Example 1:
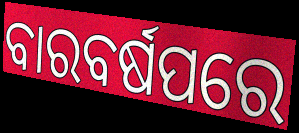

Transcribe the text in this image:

ବାରବର୍ଷପରେ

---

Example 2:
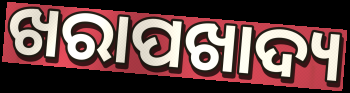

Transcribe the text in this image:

ଖରାପଖାଦ୍ୟ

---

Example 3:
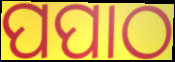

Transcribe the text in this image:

ପପାଠ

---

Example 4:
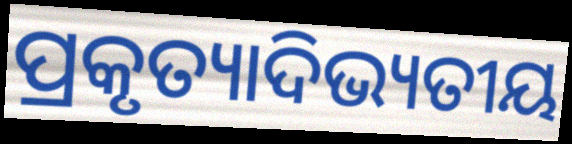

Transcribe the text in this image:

ପ୍ରକୃତ୍ୟାଦିଭ୍ୟତୀୟ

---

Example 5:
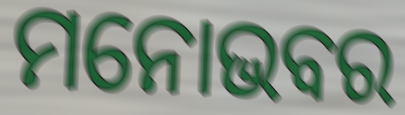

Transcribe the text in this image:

ମନୋଭବର